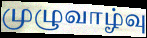
முழுவாழ்வு